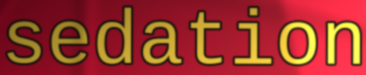
sedation